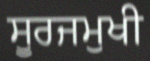
ਸੂਰਜਮੁਖੀ